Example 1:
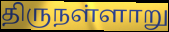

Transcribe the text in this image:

திருநள்ளாறு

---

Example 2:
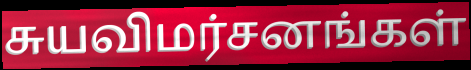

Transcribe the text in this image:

சுயவிமர்சனங்கள்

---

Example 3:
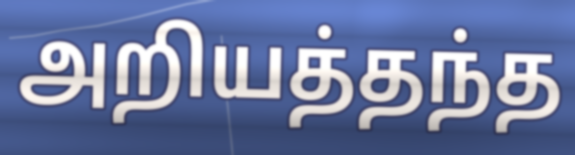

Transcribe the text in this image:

அறியத்தந்த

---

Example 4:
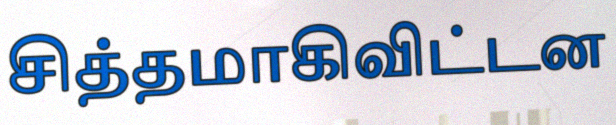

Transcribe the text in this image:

சித்தமாகிவிட்டன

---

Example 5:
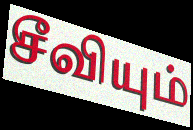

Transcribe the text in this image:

சீவியும்